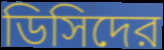
ডিসিদের